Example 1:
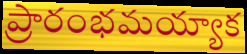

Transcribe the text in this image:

ప్రారంభమయ్యాక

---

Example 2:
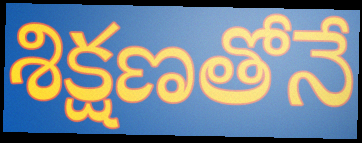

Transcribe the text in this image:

శిక్షణతోనే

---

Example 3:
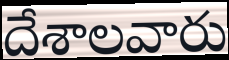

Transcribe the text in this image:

దేశాలవారు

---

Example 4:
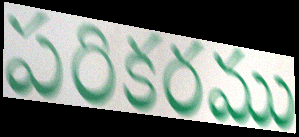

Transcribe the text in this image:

పరికరము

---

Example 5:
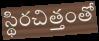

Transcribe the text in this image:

స్థిరచిత్తంతో